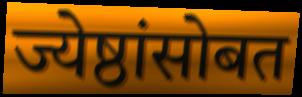
ज्येष्ठांसोबत